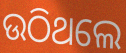
ଉଠିଥଲେ